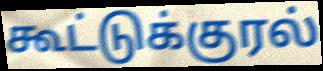
கூட்டுக்குரல்